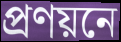
প্ৰণয়নে